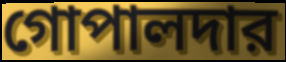
গোপালদার